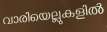
വാരിയെല്ലുകളിൽ